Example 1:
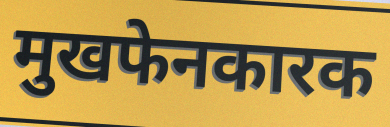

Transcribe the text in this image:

मुखफेनकारक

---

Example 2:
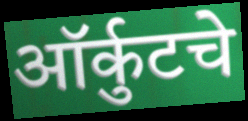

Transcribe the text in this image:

ऑर्कुटचे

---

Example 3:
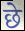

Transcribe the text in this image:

छे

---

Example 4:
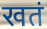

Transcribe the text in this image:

खतं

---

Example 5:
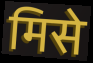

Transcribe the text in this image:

मिसे